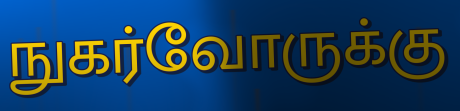
நுகர்வோருக்கு